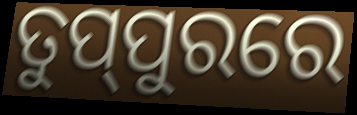
ତୁପ୍‌ପୁରରେ